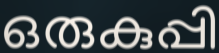
ഒരുകുപ്പി